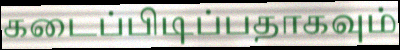
கடைப்பிடிப்பதாகவும்